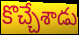
కొచ్చేశాడు